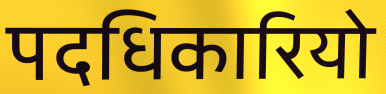
पदधिकारियो